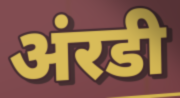
अंरडी